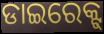
ଡାଇରେକ୍ଟ୍